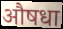
औषधा